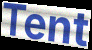
Tent